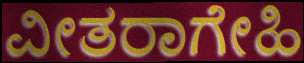
ವೀತರಾಗೇಹಿ